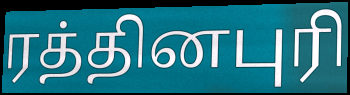
ரத்தினபுரி